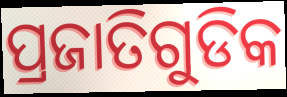
ପ୍ରଜାତିଗୁଡିକ